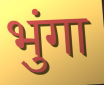
भुंगा